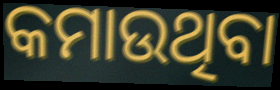
କମାଉଥିବା